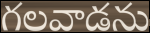
గలవాడను